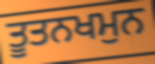
ਤੂਤਨਖਮੁਨ